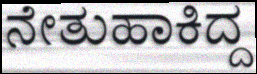
ನೇತುಹಾಕಿದ್ದ